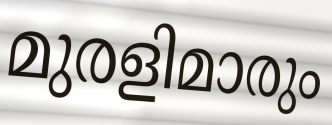
മുരളിമാരും